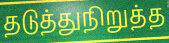
தடுத்துநிறுத்த